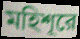
মহিশূরে